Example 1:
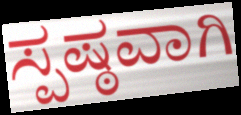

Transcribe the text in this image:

ಸ್ಪಷ್ಠವಾಗಿ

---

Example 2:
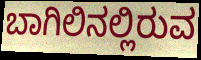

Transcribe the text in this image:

ಬಾಗಿಲಿನಲ್ಲಿರುವ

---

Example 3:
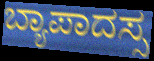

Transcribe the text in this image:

ಬ್ಯಾಪಾದಸ್ಸ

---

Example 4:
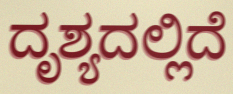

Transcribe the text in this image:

ದೃಶ್ಯದಲ್ಲಿದೆ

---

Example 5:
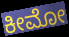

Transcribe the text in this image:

ಕೀಮೋ